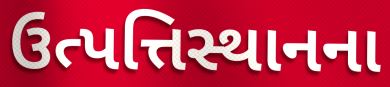
ઉત્પત્તિસ્થાનના